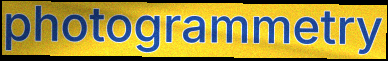
photogrammetry